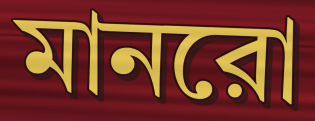
মানরো